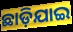
ଛାଡ଼ିଯାଇ